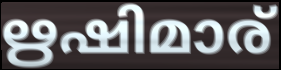
ഋഷിമാര്